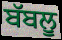
ਬੱਬਲੂ